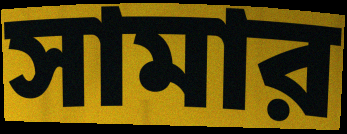
সামার